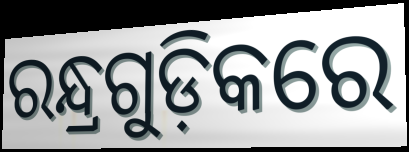
ରନ୍ଧ୍ରଗୁଡ଼ିକରେ